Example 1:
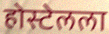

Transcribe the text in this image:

होस्टेलला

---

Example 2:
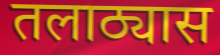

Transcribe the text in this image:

तलाठ्यास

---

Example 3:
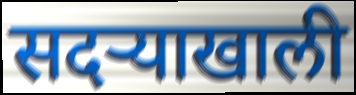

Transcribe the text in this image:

सदऱ्याखाली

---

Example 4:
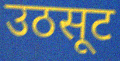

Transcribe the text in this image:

उठसूट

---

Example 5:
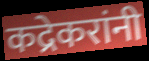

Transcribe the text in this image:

कद्रेकरांनी